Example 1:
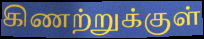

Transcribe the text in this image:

கிணற்றுக்குள்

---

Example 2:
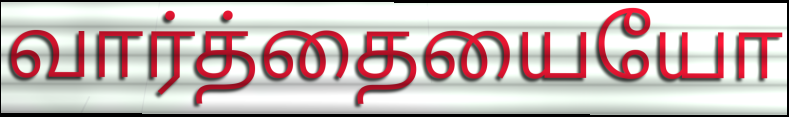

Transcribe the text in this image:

வார்த்தையையோ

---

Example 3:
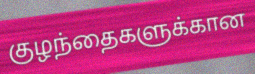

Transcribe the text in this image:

குழந்தைகளுக்கான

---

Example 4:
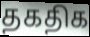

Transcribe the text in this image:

தகதிக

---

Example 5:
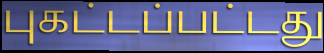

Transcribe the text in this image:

புகட்டப்பட்டது